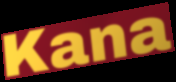
Kana